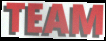
TEAM